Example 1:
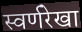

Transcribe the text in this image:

स्वर्णरेखा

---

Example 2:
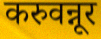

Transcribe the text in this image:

करुवन्नूर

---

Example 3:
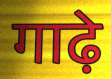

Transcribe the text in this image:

गाढ़े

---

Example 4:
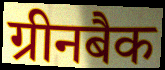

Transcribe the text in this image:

ग्रीनबैक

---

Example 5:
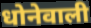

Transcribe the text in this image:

धोनेवाली